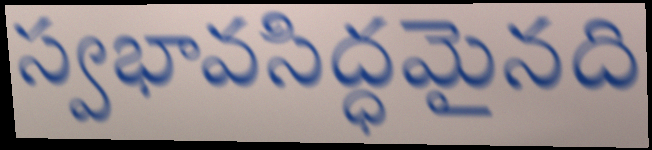
స్వభావసిద్ధమైనది